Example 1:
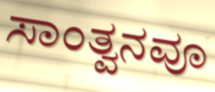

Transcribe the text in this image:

ಸಾಂತ್ವನವೂ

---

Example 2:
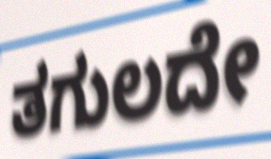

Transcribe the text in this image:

ತಗುಲದೇ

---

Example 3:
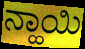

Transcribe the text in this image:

ನ್ಹಾಯಿ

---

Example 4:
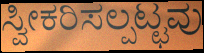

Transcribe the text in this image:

ಸ್ವೀಕರಿಸಲ್ಪಟ್ಟವು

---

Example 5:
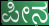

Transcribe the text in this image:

ಪೀನ